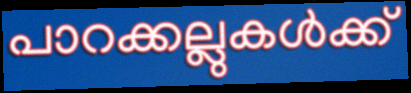
പാറക്കല്ലുകൾക്ക്